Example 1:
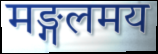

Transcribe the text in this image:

मङ्गलमय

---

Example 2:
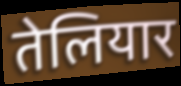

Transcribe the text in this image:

तेलियार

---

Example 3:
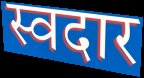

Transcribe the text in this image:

स्वदार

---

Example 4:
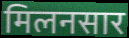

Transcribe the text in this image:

मिलनसार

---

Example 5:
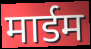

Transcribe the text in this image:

मार्डम